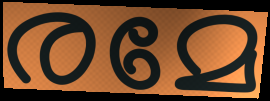
രമേ